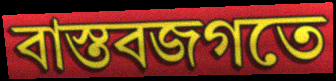
বাস্তবজগতে